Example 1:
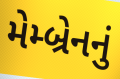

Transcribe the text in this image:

મેમ્બ્રેનનું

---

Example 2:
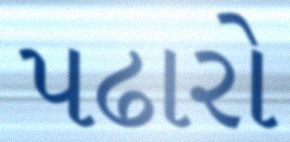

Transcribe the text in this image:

પઢારો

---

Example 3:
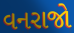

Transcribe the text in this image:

વનરાજો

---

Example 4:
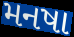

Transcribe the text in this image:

મનષા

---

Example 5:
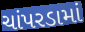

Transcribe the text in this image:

ચાંપરડામાં